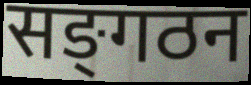
सङ्गठन